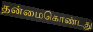
தன்மைகொண்டது